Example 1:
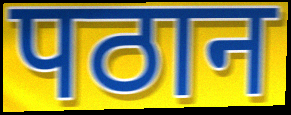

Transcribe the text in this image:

पठान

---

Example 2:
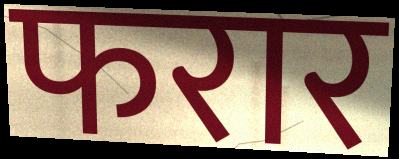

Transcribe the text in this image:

फरार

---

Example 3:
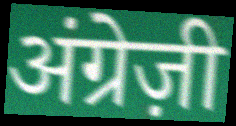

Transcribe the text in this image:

अंग्रेज़ी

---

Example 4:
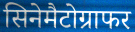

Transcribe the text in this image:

सिनेमैटोग्राफर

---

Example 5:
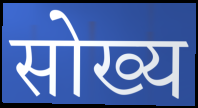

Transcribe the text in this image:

सोख्य